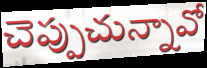
చెప్పుచున్నావో